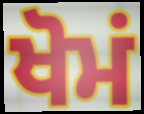
ਖੋਮਂ